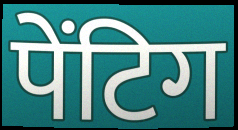
पेंटिग